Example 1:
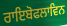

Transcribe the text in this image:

ਰਾਇਬੋਫਲਾਵਿਨ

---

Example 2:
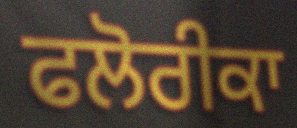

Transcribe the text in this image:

ਫਲੋਰੀਕਾ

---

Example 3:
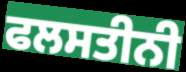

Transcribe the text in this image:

ਫਲਸਤੀਨੀ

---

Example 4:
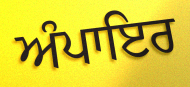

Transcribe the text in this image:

ਅੰਪਾਇਰ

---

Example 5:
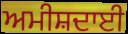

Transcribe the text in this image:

ਅਮੀਸ਼ਦਾਈ